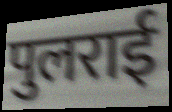
पुलराई